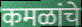
कमळांचे